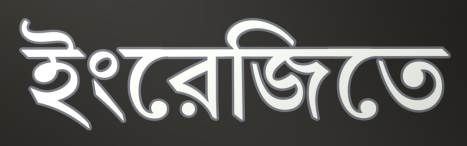
ইংরেজিতে